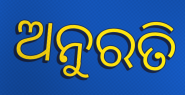
ଅନୁରତି